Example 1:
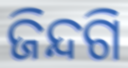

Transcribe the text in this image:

ଜିନ୍ଦଗି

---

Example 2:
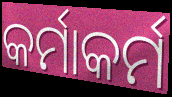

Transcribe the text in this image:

କର୍ମାକର୍ମ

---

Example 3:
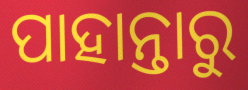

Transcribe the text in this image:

ପାହାନ୍ତାରୁ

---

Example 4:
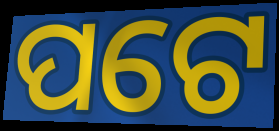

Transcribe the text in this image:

ପଟେ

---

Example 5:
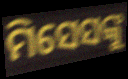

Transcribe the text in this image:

ମିସେସଙ୍କୁ